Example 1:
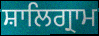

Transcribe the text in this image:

ਸ਼ਾਲਿਗ੍ਰਾਮ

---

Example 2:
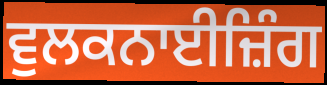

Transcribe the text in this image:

ਵੁਲਕਨਾਈਜ਼ਿੰਗ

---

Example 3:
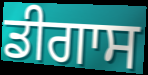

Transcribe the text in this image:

ਡੀਗਾਸ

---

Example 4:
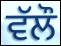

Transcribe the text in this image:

ਵੱਲੌ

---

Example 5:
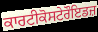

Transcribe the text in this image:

ਕਾਰਟੀਕੋਸਟੇਰੌਇਡਜ਼